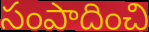
సంపాదించి